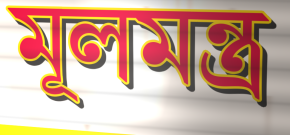
মূলমন্ত্র